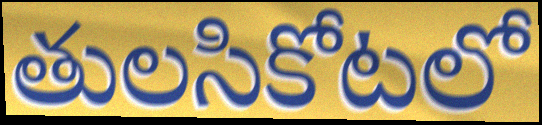
తులసికోటలో